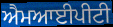
ਐਮਆਈਪੀਟੀ